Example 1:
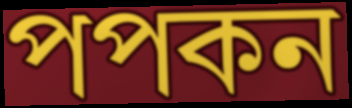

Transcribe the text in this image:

পপকন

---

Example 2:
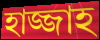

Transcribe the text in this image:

হাজ্জাহ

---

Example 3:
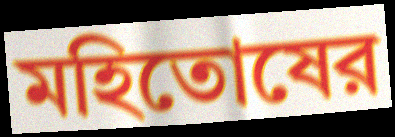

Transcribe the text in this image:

মহিতোষের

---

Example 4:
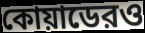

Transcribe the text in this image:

কোয়াডেরও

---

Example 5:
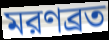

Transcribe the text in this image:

মরণব্রত